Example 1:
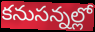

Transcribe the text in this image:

కనుసన్నల్లో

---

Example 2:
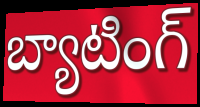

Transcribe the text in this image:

బ్యాటింగ్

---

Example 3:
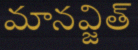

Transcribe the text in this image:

మానవ్జిత్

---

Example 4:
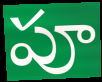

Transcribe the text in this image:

పూ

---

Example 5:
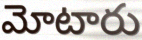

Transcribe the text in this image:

మోటారు